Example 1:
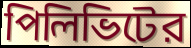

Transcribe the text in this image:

পিলিভিটের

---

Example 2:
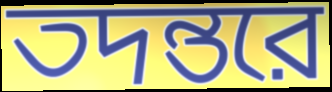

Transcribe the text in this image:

তদন্তরে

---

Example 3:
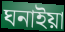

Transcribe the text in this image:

ঘনাইয়া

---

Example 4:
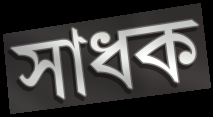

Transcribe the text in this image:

সাধক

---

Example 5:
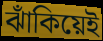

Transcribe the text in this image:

ঝাঁকিয়েই